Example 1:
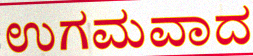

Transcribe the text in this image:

ಉಗಮವಾದ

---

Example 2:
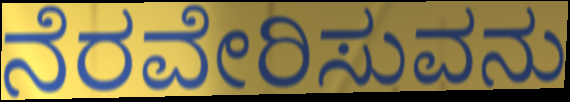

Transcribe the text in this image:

ನೆರವೇರಿಸುವನು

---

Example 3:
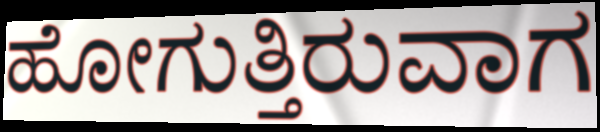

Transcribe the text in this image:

ಹೋಗುತ್ತಿರುವಾಗ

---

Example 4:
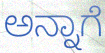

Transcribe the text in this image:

ಅನ್ನಾಗೆ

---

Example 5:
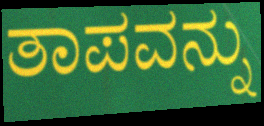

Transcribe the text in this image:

ತಾಪವನ್ನು